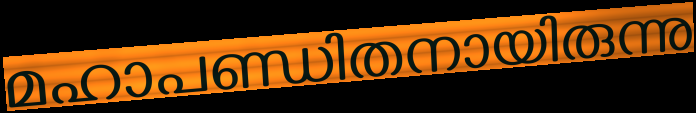
മഹാപണ്ഡിതനായിരുന്നു